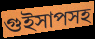
গুইসাপসহ